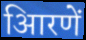
आिरणें